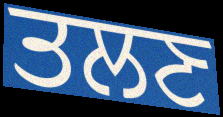
ਤਲਣ